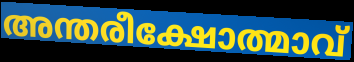
അന്തരീക്ഷോത്മാവ്